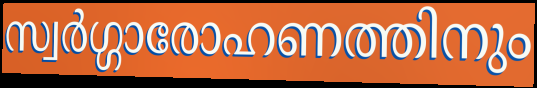
സ്വർഗ്ഗാരോഹണത്തിനും